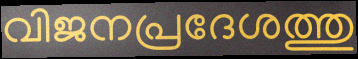
വിജനപ്രദേശത്തു